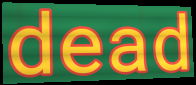
dead